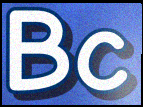
Bc